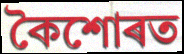
কৈশোৰত